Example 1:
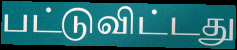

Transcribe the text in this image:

பட்டுவிட்டது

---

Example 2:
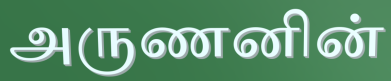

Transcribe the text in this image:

அருணனின்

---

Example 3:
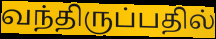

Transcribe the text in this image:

வந்திருப்பதில்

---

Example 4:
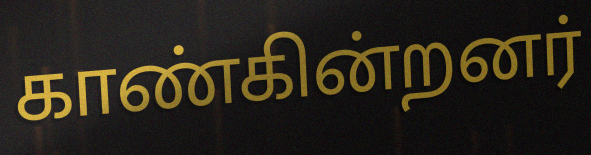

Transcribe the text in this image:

காண்கின்றனர்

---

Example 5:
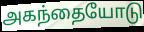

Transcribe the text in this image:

அகந்தையோடு